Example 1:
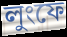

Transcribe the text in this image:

লুংফে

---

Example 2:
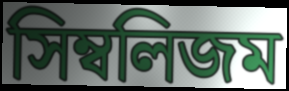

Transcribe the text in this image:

সিম্বলিজম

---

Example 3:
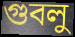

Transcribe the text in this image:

গুবলু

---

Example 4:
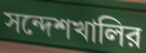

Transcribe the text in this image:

সন্দেশখালির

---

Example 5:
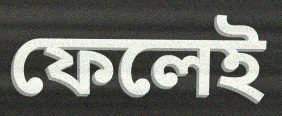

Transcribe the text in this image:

ফেলেই